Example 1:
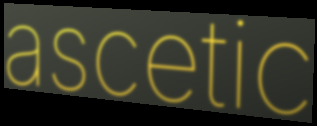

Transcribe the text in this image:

ascetic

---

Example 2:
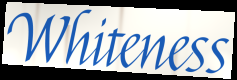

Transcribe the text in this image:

Whiteness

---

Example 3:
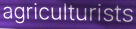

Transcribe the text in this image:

agriculturists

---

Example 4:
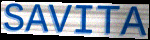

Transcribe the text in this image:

SAVITA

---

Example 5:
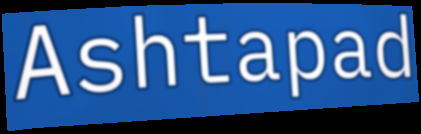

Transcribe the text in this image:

Ashtapad